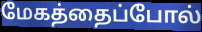
மேகத்தைப்போல்